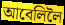
আবেলিলৈ